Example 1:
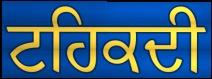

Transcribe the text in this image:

ਟਹਿਕਦੀ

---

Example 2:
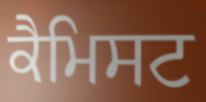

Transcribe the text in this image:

ਕੈਮਿਸਟ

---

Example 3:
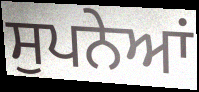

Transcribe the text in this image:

ਸੁਪਨੇਆਂ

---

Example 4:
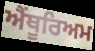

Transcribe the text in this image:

ਐਂਥੂਰਿਅਮ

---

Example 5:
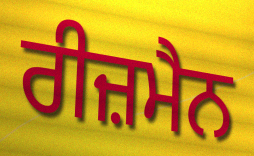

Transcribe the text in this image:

ਰੀਜ਼ਮੈਨ